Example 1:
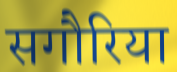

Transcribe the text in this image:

सगौरिया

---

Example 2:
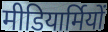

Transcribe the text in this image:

मीडियार्मियों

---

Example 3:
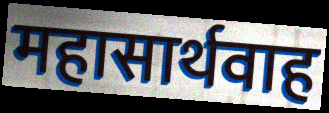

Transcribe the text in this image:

महासार्थवाह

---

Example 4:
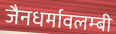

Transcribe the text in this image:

जैनधर्मावलम्बी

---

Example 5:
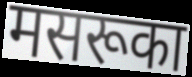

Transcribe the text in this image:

मसरूका